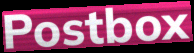
Postbox